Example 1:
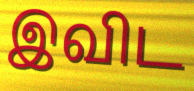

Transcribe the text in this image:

இவிட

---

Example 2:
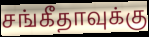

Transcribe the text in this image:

சங்கீதாவுக்கு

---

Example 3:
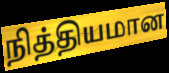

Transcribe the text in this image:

நித்தியமான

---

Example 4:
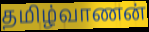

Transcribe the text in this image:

தமிழ்வாணன்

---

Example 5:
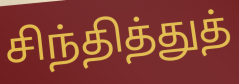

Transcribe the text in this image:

சிந்தித்துத்